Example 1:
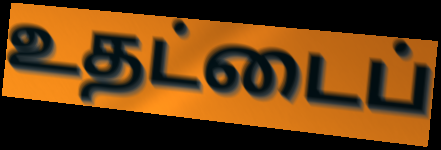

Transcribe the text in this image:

உதட்டைப்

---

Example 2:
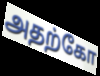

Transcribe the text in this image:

அதற்கோ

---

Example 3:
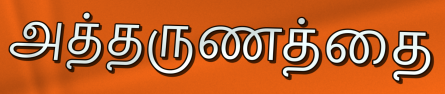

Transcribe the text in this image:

அத்தருணத்தை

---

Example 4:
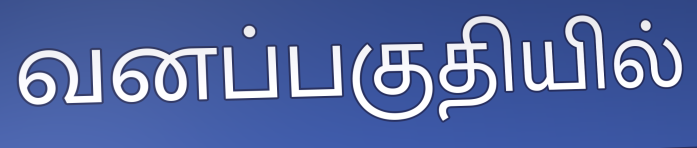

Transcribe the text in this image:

வனப்பகுதியில்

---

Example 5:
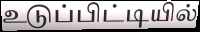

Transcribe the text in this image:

உடுப்பிட்டியில்